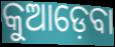
କୁଆଡ଼େବା